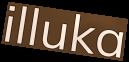
illuka